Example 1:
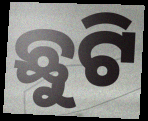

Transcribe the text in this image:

ଛୁଟି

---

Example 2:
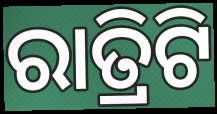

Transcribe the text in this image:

ରାତ୍ରିଟି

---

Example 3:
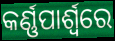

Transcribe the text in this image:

କର୍ଣ୍ଣପାର୍ଶ୍ୱରେ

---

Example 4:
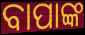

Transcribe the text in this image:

ବାପାଙ୍କ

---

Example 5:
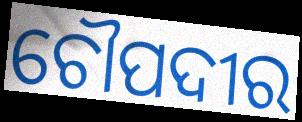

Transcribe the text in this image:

ଚୌପଦୀର